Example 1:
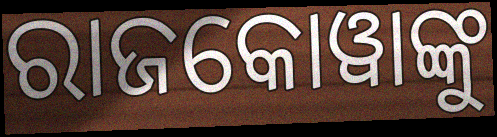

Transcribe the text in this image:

ରାଜକୋୱାଙ୍କୁ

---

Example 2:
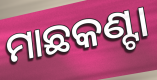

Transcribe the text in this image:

ମାଛକଣ୍ଟା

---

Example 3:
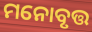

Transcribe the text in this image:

ମନୋବୃତ୍ତ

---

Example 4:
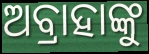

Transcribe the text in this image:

ଅବ୍ରାହାଙ୍କୁ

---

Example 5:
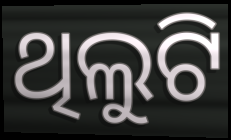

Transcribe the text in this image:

ଥିଲୁଟି